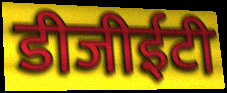
डीजीईटी